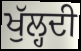
ਖੁੱਲ੍ਹਦੀ